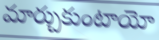
మార్చుకుంటాయో